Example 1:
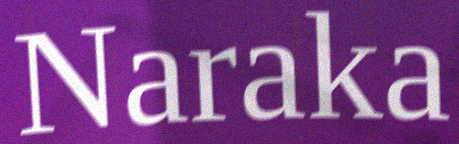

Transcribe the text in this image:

Naraka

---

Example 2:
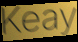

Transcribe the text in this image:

Keay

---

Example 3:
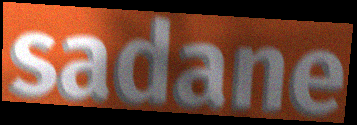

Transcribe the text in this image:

sadane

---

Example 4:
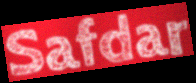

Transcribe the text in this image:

Safdar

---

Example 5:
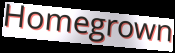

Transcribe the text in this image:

Homegrown